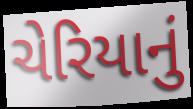
ચેરિયાનું